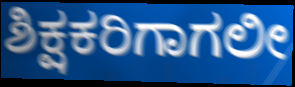
ಶಿಕ್ಷಕರಿಗಾಗಲೀ